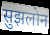
सुझलोन